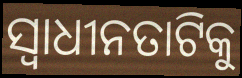
ସ୍ୱାଧୀନତାଟିକୁ